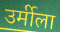
उर्मीला